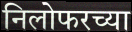
निलोफरच्या